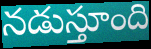
నడుస్తూంది